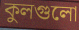
কুলগুলো